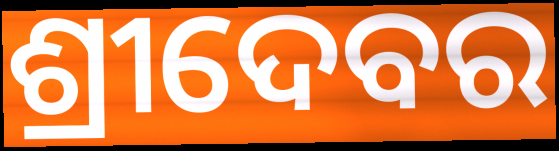
ଶ୍ରୀଦେବର